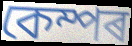
কেম্পৰ